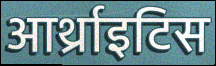
आर्थ्राइटिस